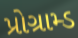
પ્રોગ્રામ્ડ